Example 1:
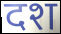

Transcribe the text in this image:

दश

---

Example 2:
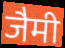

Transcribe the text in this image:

जैमी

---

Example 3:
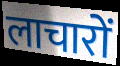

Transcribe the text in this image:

लाचारों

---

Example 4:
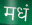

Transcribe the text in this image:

मधं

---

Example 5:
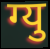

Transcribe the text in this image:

ग्यु